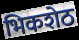
भिकशेठ